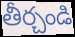
తీర్చండి